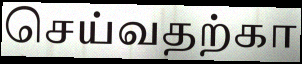
செய்வதற்கா